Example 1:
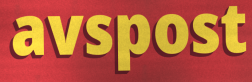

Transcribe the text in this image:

avspost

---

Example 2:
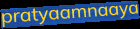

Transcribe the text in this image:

pratyaamnaaya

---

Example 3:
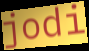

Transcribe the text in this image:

jodi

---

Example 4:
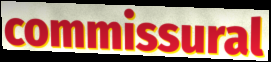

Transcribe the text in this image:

commissural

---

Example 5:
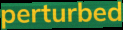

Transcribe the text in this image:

perturbed